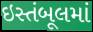
ઇસ્તંબૂલમાં